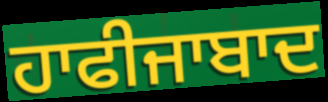
ਹਾਫੀਜਾਬਾਦ